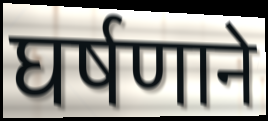
घर्षणाने